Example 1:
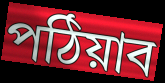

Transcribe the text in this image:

পঠিয়াব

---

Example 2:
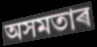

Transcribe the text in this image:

অসমতাৰ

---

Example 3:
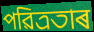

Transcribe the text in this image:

পৱিত্ৰতাৰ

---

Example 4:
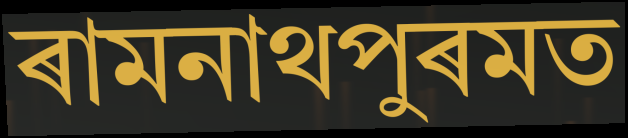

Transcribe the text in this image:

ৰামনাথপুৰমত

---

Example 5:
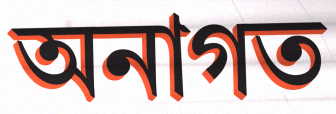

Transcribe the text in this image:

অনাগত